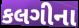
કલગીના